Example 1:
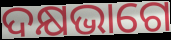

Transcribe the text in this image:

ଦକ୍ଷଭାଗେ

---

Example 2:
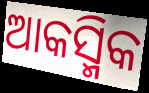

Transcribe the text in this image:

ଆକସ୍ମିକ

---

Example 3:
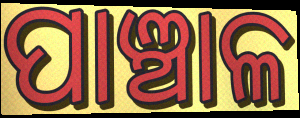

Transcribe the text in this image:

ପାଞ୍ଚାଳ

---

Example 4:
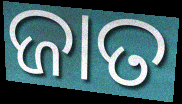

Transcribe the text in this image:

ଜାତ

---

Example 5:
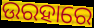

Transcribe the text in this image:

ଉରହାରେ